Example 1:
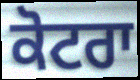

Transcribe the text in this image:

ਕੋਟਰਾ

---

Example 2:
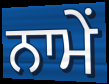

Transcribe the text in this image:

ਨਾਮੇਂ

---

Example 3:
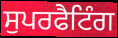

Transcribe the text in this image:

ਸੁਪਰਫੈਟਿੰਗ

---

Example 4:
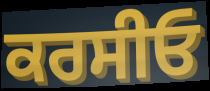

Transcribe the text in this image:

ਕਰਸੀਓ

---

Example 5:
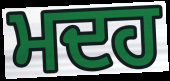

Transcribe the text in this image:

ਮਦਹ